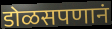
डोळसपणानं